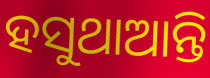
ହସୁଥାଆନ୍ତି